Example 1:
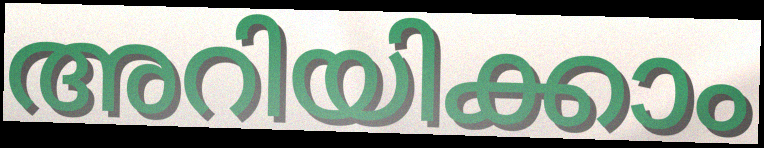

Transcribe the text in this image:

അറിയിക്കാം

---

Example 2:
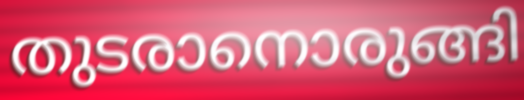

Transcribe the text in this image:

തുടരാനൊരുങ്ങി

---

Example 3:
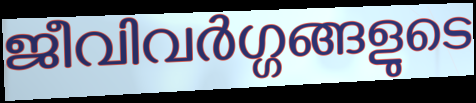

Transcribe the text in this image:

ജീവിവർഗ്ഗങ്ങളുടെ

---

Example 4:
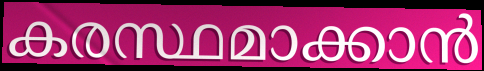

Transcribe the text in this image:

കരസ്ഥമാക്കാൻ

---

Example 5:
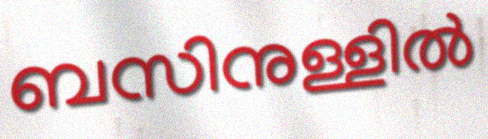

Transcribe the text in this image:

ബസിനുള്ളിൽ